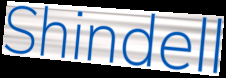
Shindell